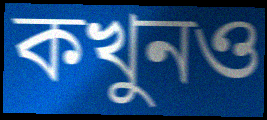
কখুনও